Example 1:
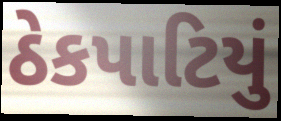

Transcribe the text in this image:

ઠેકપાટિયું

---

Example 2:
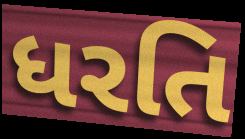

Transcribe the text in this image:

ધરતિ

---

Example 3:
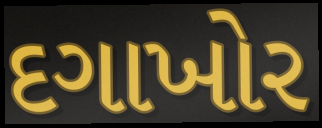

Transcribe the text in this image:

દગાખોર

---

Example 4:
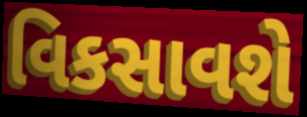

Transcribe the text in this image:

વિકસાવશે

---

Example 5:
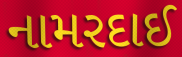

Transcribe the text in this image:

નામરદાઈ